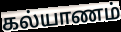
கல்யாணம்